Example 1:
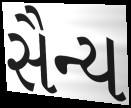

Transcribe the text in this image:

સૈન્ય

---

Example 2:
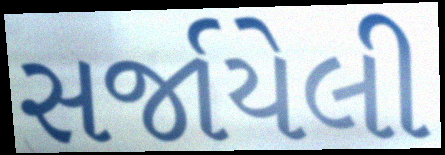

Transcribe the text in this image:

સર્જાયેલી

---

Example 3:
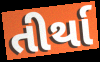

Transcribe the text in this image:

તીર્થા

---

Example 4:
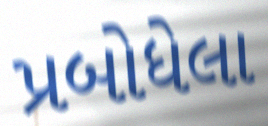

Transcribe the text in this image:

પ્રબોધેલા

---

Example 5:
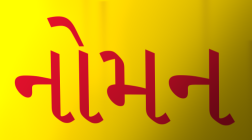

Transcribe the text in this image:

નોમન